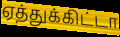
ஏத்துக்கிட்டா